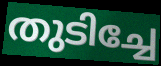
തുടിച്ചേ